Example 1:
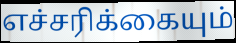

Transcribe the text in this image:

எச்சரிக்கையும்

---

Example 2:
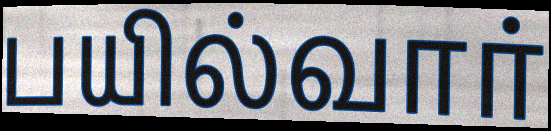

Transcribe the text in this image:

பயில்வார்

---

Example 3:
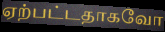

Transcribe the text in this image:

ஏற்பட்டதாகவோ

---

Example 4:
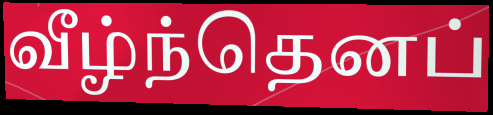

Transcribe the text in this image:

வீழ்ந்தெனப்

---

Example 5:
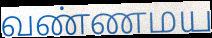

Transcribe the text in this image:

வண்ணமய